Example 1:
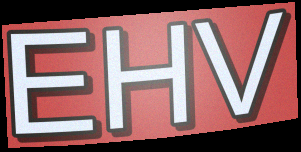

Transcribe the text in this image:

EHV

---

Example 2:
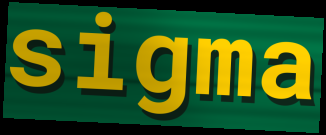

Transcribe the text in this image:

sigma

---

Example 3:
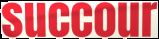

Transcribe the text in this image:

succour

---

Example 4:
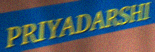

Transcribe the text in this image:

PRIYADARSHI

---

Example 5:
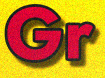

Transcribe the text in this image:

Gr